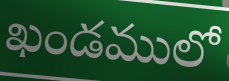
ఖండములో